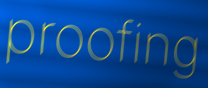
proofing